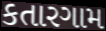
કતારગામ